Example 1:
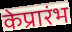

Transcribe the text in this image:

केप्रारंभ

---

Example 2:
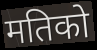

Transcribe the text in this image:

मतिको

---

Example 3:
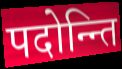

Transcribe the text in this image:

पदोन्न्ति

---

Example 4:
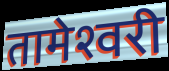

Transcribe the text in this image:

तामेश्वरी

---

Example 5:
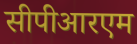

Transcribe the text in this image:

सीपीआरएम